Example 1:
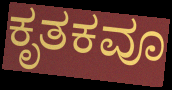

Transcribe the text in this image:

ಕೃತಕವೂ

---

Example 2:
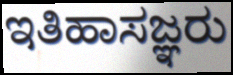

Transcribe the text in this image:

ಇತಿಹಾಸಜ್ಞರು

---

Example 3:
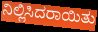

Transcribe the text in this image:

ನಿಲ್ಲಿಸಿದರಾಯಿತು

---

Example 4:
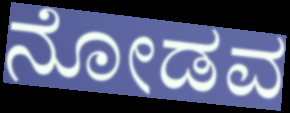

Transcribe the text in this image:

ನೋಡವ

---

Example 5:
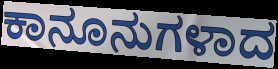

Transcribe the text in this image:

ಕಾನೂನುಗಳಾದ